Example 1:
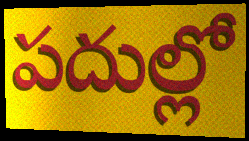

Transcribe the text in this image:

పదుల్లో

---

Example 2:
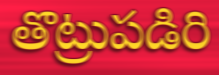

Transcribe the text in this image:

తొట్రుపడిరి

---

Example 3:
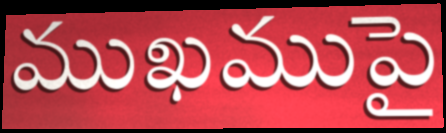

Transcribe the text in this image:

ముఖముపై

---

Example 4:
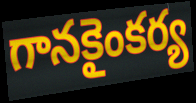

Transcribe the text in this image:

గానకైంకర్య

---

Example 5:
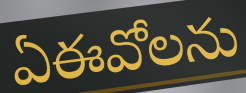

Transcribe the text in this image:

ఏఈవోలను